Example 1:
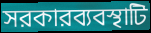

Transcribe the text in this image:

সরকারব্যবস্থাটি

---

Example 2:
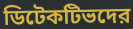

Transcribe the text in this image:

ডিটেকটিভদের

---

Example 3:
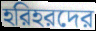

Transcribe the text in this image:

হরিহরদের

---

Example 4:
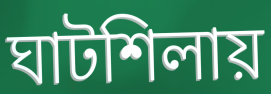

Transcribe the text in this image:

ঘাটশিলায়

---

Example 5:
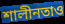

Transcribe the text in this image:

শালীনতাও